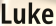
Luke